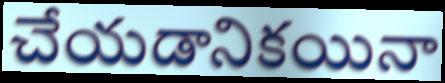
చేయడానికయినా